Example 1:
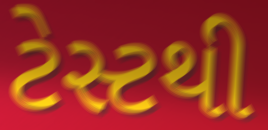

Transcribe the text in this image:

ટેસ્ટથી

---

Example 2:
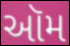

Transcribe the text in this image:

ઑમ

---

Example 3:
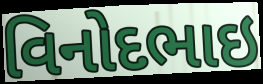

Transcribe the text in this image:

વિનોદભાઇ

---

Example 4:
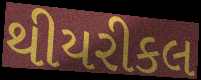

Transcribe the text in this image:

થીયરીકલ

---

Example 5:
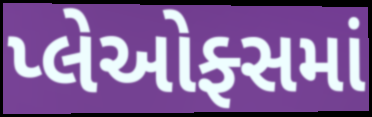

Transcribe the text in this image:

પ્લેઓફ્સમાં